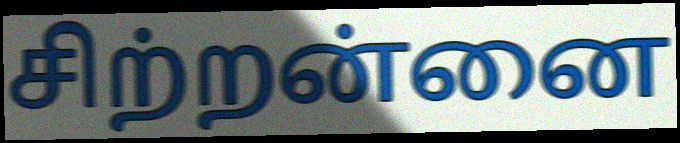
சிற்றன்னை